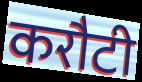
करौटी